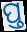
ପ୍ତ